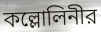
কল্লোলিনীর